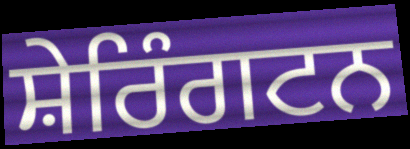
ਸ਼ੇਰਿੰਗਟਨ